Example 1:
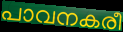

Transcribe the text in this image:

പാവനകരീ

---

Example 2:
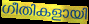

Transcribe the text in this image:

ഗീതികളായി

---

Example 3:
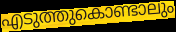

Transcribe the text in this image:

എടുത്തുകൊണ്ടാലും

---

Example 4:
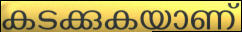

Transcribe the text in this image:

കടക്കുകയാണ്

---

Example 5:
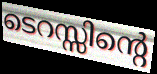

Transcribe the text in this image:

ടെറസ്സിന്റെ